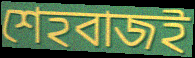
শেহবাজই